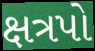
ક્ષત્રપો